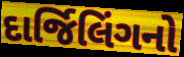
દાર્જિલિંગનો